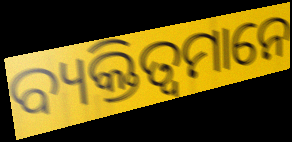
ବ୍ୟକ୍ତିତ୍ୱମାନେ